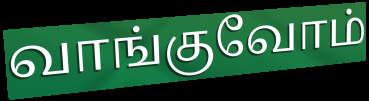
வாங்குவோம்